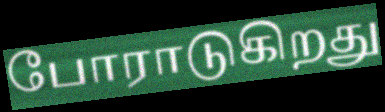
போராடுகிறது